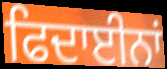
ਫਿਦਾਈਨਾਂ